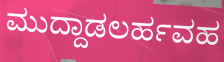
ಮುದ್ದಾಡಲರ್ಹವಹ